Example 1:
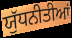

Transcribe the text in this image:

ਯੁੱਧਨੀਤੀਆਂ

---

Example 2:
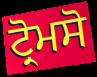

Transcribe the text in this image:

ਟ੍ਰੋਮਸੋ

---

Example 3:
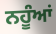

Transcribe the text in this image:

ਨਹੂੰਆਂ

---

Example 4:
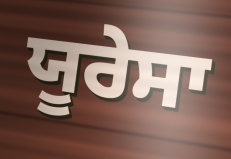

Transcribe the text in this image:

ਯੂਰੇਸਾ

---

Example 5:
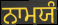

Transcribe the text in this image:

ਨਾਮਯੰ